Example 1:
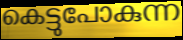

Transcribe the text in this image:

കെട്ടുപോകുന്ന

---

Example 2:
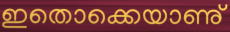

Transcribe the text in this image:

ഇതൊക്കെയാണു്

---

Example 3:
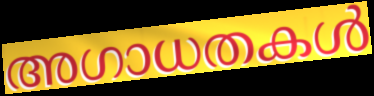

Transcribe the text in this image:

അഗാധതകൾ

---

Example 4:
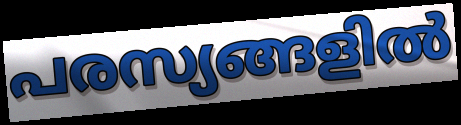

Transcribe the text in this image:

പരസ്യങ്ങളിൽ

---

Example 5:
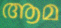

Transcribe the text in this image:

ആമ